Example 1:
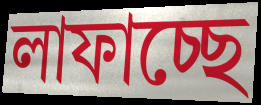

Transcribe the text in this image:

লাফাচ্ছে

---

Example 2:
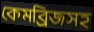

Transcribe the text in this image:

কেমব্রিজসহ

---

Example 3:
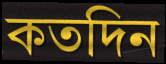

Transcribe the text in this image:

কতদিন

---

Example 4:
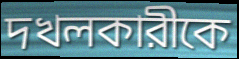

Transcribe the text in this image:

দখলকারীকে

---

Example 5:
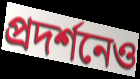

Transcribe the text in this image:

প্রদর্শনেও